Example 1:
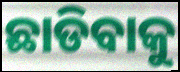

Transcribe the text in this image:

ଛାଡିବାକୁ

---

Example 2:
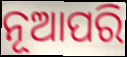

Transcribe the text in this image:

ନୂଆପରି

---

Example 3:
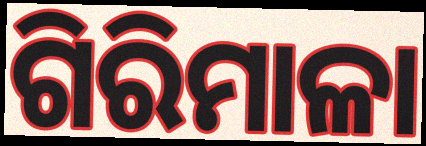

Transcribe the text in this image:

ଗିରିମାଳା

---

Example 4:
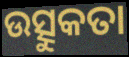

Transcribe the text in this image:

ଉତ୍ସୁକତା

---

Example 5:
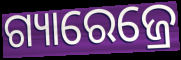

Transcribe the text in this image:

ଗ୍ୟାରେଜ୍ରେ